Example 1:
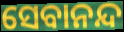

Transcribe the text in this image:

ସେବାନନ୍ଦ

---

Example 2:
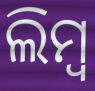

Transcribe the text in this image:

ଲିମ୍ବ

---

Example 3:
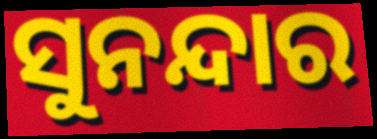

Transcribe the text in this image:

ସୁନନ୍ଦାର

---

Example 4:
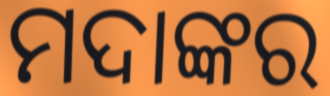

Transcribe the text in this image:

ମଦାଙ୍କର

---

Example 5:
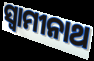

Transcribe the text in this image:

ସ୍ୱାମୀନାଥ